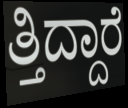
ತ್ತಿದ್ದಾರೆ